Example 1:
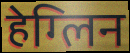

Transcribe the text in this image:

हेग्लिन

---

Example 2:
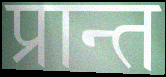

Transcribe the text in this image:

प्रान्त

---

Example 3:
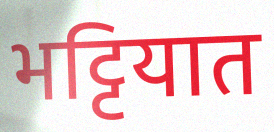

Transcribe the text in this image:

भट्टियात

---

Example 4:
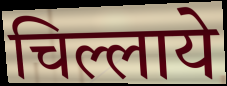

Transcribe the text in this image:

चिल्लाये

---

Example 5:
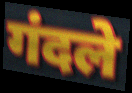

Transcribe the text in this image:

गंदले